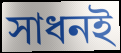
সাধনই